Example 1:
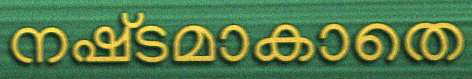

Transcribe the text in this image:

നഷ്‌ടമാകാതെ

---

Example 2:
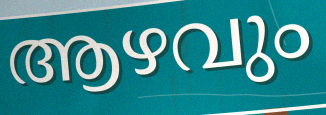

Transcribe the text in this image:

ആഴവും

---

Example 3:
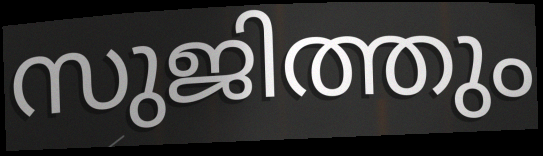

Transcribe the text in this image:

സുജിത്തും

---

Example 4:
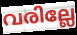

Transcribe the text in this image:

വരില്ലേ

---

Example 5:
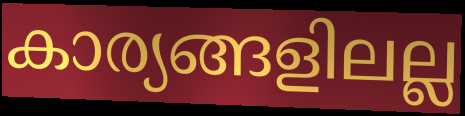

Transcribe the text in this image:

കാര്യങ്ങളിലല്ല